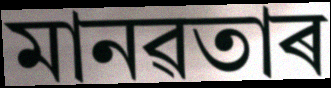
মানৱতাৰ